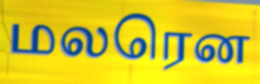
மலரென